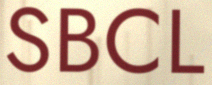
SBCL